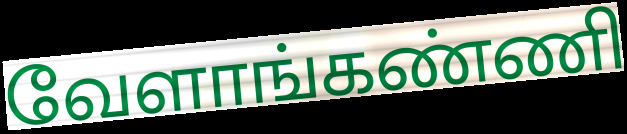
வேளாங்கண்ணி